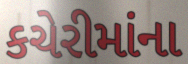
કચેરીમાંના